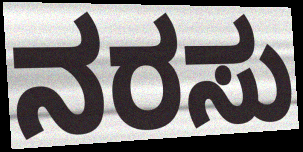
ನರಸು